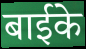
बाईके